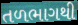
તળભાગથી